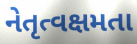
નેતૃત્વક્ષમતા